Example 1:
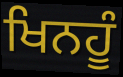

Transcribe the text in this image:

ਖਿਨਹੂੰ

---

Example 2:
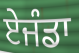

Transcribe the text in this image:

ਏਜੰਡਾ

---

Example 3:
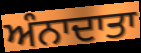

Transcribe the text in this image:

ਅੰਨਾਦਾਤਾ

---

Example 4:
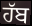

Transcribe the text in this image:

ਹੱਬ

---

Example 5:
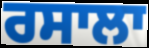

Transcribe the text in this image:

ਰਸਾਲਾ